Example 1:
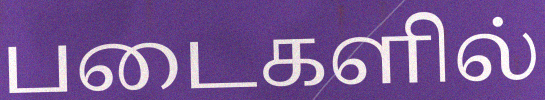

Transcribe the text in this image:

படைகளில்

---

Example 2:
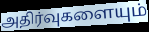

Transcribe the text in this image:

அதிர்வுகளையும்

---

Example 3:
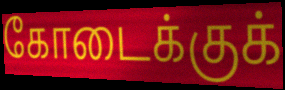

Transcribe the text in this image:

கோடைக்குக்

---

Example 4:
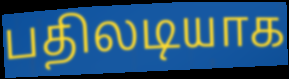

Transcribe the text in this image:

பதிலடியாக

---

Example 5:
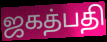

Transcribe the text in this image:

ஜகத்பதி